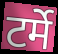
टर्मे